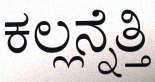
ಕಲ್ಲನ್ನೆತ್ತಿ